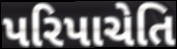
પરિપાચેતિ